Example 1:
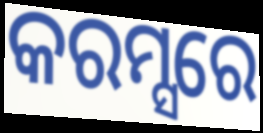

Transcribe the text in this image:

କରମ୍ସରେ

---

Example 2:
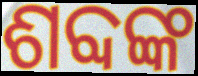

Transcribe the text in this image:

ଶବ୍ଦଙ୍କ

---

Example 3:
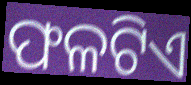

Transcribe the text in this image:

ଫଳଟିଏ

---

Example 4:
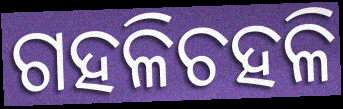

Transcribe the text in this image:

ଗହଳିଚହଳି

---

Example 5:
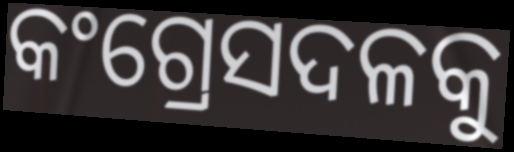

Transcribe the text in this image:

କଂଗ୍ରେସଦଳକୁ